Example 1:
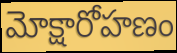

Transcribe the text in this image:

మోక్షారోహణం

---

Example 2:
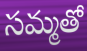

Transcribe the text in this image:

సమ్మతో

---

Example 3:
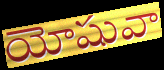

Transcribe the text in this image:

యోషువా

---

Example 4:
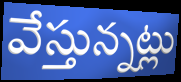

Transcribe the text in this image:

వేస్తున్నట్లు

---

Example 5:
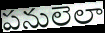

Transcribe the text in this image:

పనులెలా